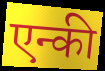
एन्की